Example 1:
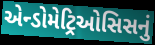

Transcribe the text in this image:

એન્ડોમેટ્રિઓસિસનું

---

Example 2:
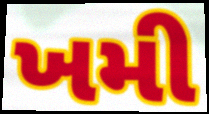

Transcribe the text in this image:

ખમી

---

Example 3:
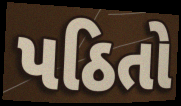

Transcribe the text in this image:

પઠિતો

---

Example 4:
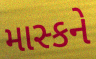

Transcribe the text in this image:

માસ્કને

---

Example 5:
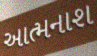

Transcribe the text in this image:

આત્મનાશ